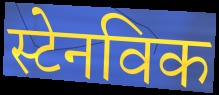
स्टेनविक